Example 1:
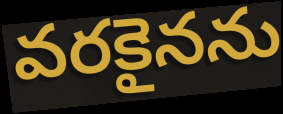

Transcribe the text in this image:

వరకైనను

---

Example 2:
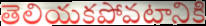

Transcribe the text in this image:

తెలియకపోవటానికి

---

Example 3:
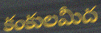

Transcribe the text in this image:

కంకులమీద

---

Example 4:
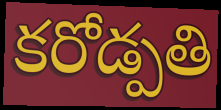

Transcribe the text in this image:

కరోడ్పతి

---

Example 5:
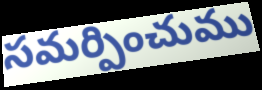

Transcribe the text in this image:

సమర్పించుము